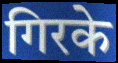
गिरके